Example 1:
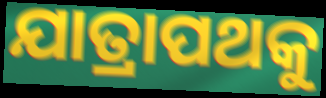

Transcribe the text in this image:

ଯାତ୍ରାପଥକୁ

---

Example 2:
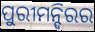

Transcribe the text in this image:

ପୁରୀମନ୍ଦିରର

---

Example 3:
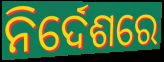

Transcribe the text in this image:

ନିର୍ଦେଶରେ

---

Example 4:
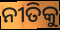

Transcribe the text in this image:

ନୀତିକୁ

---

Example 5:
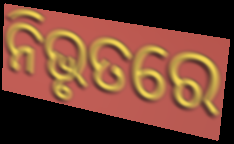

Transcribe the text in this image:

ନିଭୃତରେ